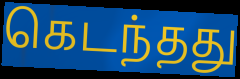
கெடந்தது